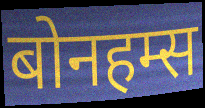
बोनहम्स